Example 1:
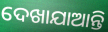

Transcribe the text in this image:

ଦେଖାଯାଆନ୍ତି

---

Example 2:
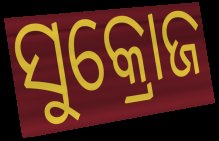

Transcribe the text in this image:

ସୁକ୍ରୋଜ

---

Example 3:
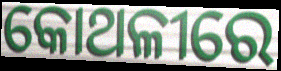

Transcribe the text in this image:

କୋଥଳୀରେ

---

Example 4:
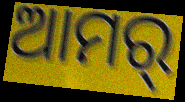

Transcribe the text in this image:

ଆମର୍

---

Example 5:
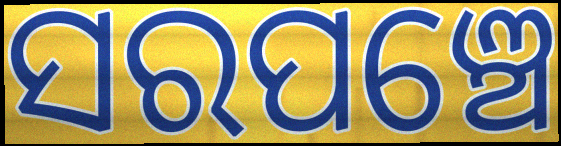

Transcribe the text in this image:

ସରପଞ୍ଚେ